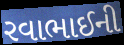
રવાભાઈની